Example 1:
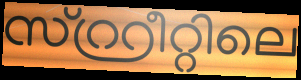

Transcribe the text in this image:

സ്റ്റ്രീറ്റിലെ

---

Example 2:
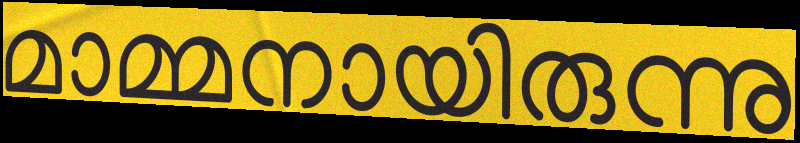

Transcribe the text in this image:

മാമ്മനായിരുന്നു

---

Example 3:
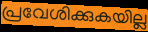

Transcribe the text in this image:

പ്രവേശിക്കുകയില്ല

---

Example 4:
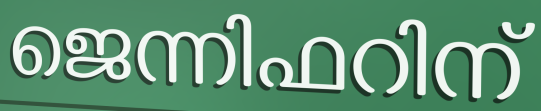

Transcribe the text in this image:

ജെന്നിഫറിന്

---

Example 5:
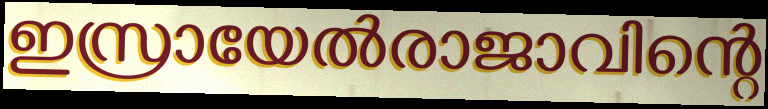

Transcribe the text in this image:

ഇസ്രായേൽരാജാവിന്റെ